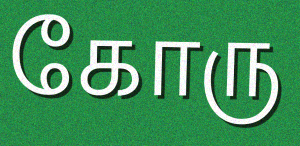
கோரு